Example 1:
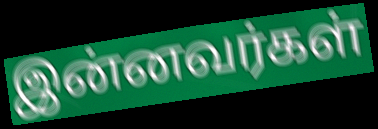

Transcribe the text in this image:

இன்னவர்கள்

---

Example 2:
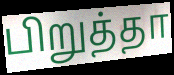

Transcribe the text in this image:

பிறுத்தா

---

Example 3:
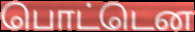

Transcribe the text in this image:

பொட்டென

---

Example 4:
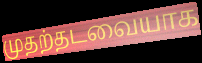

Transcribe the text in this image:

முதற்தடவையாக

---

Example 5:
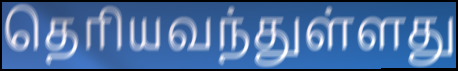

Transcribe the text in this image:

தெரியவந்துள்ளது